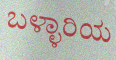
ಬಳ್ಳಾರಿಯ